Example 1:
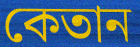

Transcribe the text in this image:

কেতান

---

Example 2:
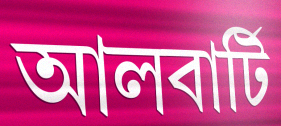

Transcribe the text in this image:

আলবার্টি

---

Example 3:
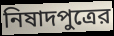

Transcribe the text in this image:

নিষাদপুত্রের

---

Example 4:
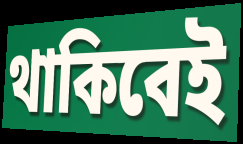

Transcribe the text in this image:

থাকিবেই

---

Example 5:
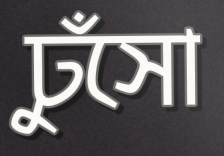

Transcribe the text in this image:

ঢুঁসো